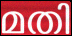
മതി